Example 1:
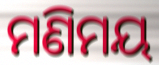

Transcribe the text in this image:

ମଣିମୟ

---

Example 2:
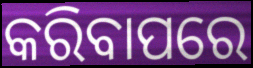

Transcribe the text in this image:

କରିବାପରେ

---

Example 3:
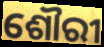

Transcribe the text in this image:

ଶୌରୀ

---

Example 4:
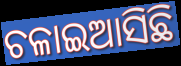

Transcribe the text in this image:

ଚଳାଇଆସିଛି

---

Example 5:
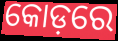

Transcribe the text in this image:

କୋଡ଼ରେ